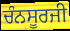
ਚੰਨਸੂਰਜੀ